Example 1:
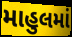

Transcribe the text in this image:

માહુલમાં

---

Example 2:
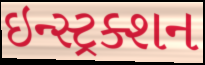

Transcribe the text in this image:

ઇન્સ્ટ્રક્શન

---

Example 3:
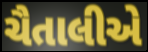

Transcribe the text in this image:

ચૈતાલીએ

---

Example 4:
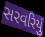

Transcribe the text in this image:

સરવરિયું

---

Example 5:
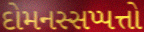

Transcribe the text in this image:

દોમનસ્સપ્પત્તો